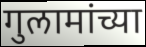
गुलामांच्या